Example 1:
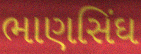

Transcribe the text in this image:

ભાણસિંઘ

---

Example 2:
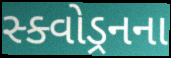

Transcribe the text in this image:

સ્ક્વોડ્રનના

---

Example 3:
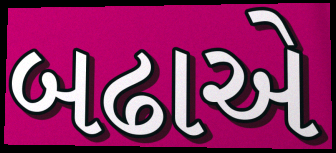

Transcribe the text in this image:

બઢાએ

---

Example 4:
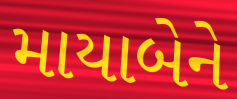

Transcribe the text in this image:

માયાબેને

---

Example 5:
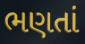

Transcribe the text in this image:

ભણતાં